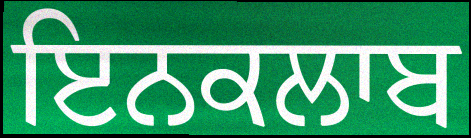
ਇਨਕਲਾਬ